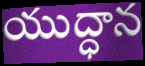
యుద్ధాన